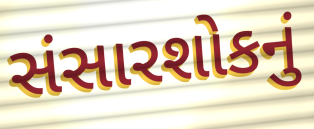
સંસારશોકનું